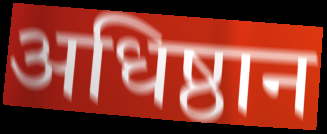
अधिष्ठान